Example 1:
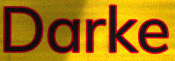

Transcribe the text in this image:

Darke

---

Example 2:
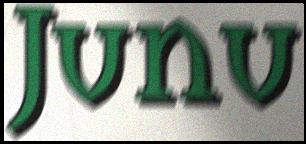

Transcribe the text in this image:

Junu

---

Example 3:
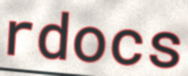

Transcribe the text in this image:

rdocs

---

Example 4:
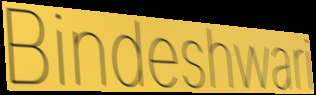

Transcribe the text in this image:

Bindeshwari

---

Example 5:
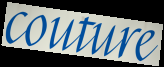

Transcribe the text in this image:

couture